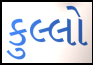
કુલ્લો